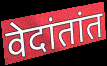
वेदांतांत